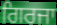
ਗਿਰਜਾ